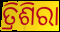
ତ୍ରିଶିରା